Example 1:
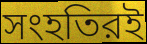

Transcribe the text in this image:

সংহতিরই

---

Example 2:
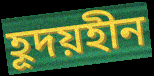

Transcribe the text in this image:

হূদয়হীন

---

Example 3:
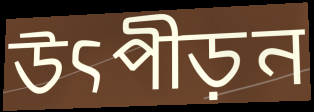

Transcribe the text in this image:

উৎপীড়ন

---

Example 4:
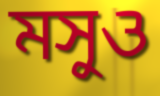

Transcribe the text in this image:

মসুও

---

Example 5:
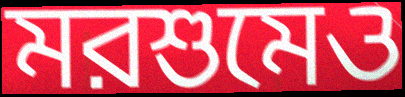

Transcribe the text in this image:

মরশুমেও